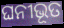
ଘନୀଭୂତ